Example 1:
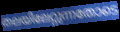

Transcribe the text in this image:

തലയിലേറ്റുന്നതോടെ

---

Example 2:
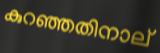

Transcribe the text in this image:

കുറഞ്ഞതിനാല്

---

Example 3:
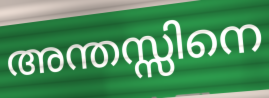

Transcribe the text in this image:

അന്തസ്സിനെ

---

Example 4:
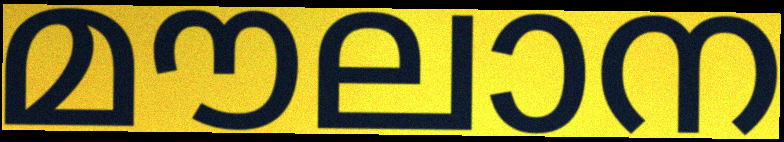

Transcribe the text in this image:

മൗലാന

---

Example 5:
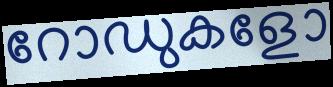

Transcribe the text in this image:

റോഡുകളോ